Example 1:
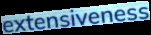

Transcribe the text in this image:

extensiveness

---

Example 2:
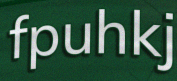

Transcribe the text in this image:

fpuhkj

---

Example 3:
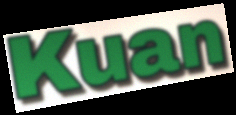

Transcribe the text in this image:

Kuan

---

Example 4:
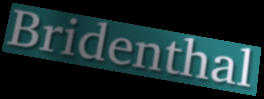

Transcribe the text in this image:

Bridenthal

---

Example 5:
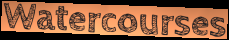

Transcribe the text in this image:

Watercourses